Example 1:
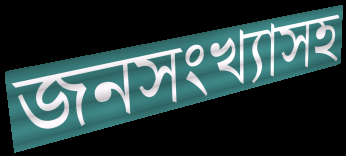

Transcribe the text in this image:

জনসংখ্যাসহ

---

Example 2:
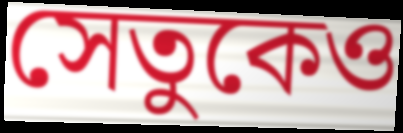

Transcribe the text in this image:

সেতুকেও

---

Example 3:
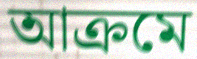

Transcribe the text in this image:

আক্রমে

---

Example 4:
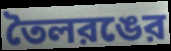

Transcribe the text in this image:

তৈলরঙের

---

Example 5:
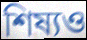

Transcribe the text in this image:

শিষ্যও